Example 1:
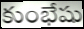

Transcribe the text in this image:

కుంభేషు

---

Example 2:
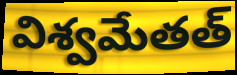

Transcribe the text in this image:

విశ్వమేతత్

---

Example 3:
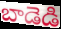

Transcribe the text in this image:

బాడెడి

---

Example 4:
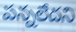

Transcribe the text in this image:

పన్నలేదని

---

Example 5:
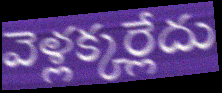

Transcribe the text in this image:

వెళ్లక్కర్లేదు